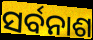
ସର୍ବନାଶ